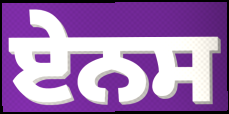
ਏਨਸ